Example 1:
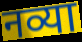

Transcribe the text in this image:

नव्या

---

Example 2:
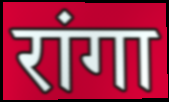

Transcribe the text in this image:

रांगा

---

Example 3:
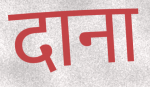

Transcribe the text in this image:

दाना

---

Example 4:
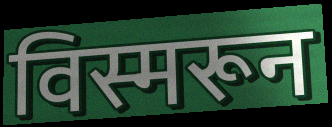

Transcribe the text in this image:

विस्मरून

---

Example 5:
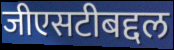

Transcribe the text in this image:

जीएसटीबद्दल